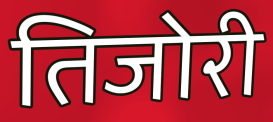
तिजोरी